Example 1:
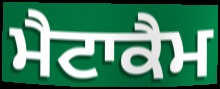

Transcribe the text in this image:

ਮੈਟਾਕੈਮ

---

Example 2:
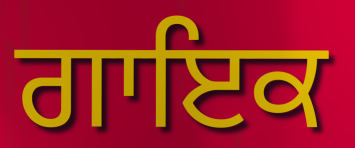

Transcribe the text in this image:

ਗਾਇਕ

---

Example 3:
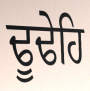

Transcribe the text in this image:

ਢੂਢੇਹਿ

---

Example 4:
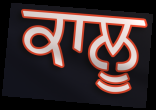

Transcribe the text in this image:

ਕਾਲੂ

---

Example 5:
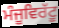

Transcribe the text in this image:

ਮੰਜੂਵਿਰੱਟੂ